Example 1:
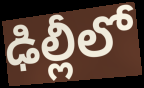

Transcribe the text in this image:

ఢిల్లీలో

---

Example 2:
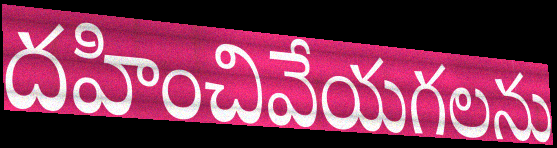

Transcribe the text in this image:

దహించివేయగలను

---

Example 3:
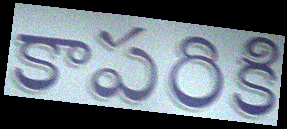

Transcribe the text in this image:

కాపరికి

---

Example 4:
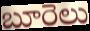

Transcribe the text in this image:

బూరెలు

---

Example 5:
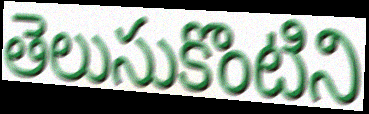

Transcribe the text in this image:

తెలుసుకొంటిని